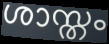
ശാസ്തം